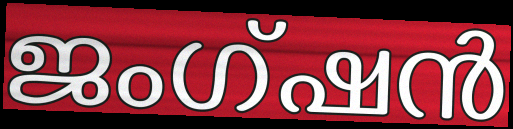
ജംഗ്ഷൻ